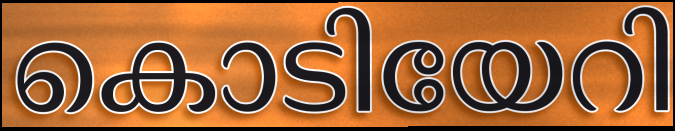
കൊടിയേറി